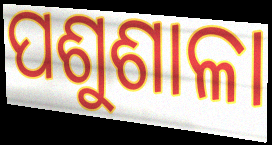
ପଶୁଶାଳା